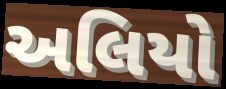
અલિયો